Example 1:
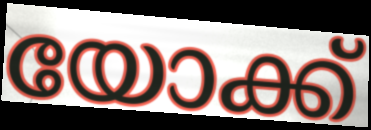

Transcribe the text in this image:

യോക്ക്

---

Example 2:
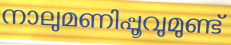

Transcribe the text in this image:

നാലുമണിപ്പൂവുമുണ്ട്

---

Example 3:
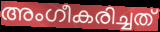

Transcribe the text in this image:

അംഗീകരിച്ചത്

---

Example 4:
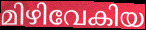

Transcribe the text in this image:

മിഴിവേകിയ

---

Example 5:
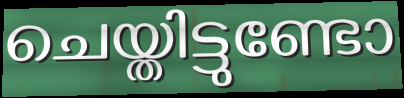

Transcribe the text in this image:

ചെയ്തിട്ടുണ്ടോ